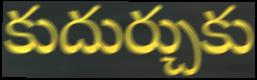
కుదుర్చుకు